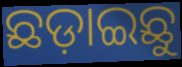
ଛଡ଼ାଇଛୁ